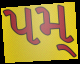
પમ્